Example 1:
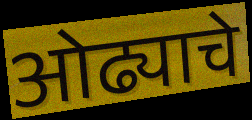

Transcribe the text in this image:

ओढ्याचे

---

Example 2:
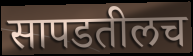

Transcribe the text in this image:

सापडतीलच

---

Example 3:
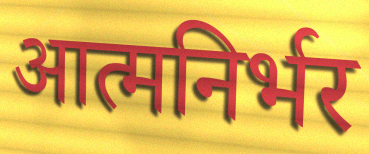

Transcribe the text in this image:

आत्मनिर्भर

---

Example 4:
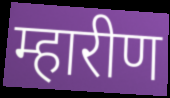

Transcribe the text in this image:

म्हारीण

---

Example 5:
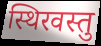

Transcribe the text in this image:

स्थिरवस्तु